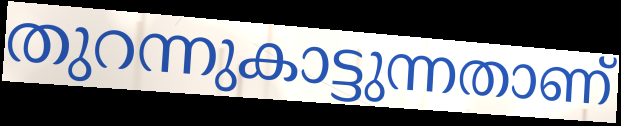
തുറന്നുകാട്ടുന്നതാണ്